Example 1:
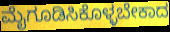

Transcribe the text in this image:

ಮೈಗೂಡಿಸಿಕೊಳ್ಳಬೇಕಾದ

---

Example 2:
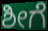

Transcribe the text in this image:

ಶೀಗೆ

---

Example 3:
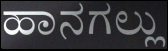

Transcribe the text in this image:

ಹಾನಗಲ್ಲು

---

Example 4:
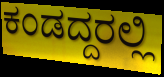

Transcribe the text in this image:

ಕಂಡದ್ದರಲ್ಲಿ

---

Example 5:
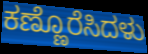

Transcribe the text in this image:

ಕಣ್ಣೊರೆಸಿದಳು